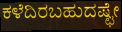
ಕಳೆದಿರಬಹುದಷ್ಟೇ